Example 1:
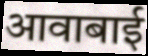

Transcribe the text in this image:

आवाबाई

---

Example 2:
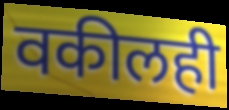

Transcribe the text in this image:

वकीलही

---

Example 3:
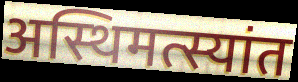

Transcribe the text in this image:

अस्थिमत्स्यांत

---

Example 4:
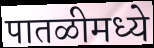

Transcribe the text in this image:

पातळीमध्ये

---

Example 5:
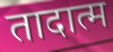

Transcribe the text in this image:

तादात्म